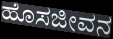
ಹೊಸಜೀವನ